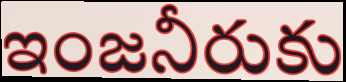
ఇంజనీరుకు